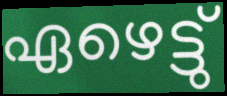
ഏഴെട്ടു്